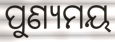
ପୁଣ୍ୟମୟ